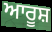
ਆਰੂਸ਼